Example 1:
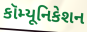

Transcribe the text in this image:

કૉમ્યૂનિકેશન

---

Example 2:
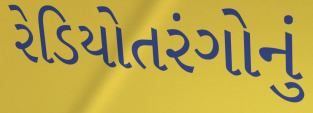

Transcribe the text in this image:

રેડિયોતરંગોનું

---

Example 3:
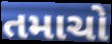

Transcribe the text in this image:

તમાચો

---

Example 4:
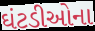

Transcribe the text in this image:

ઘંટડીઓના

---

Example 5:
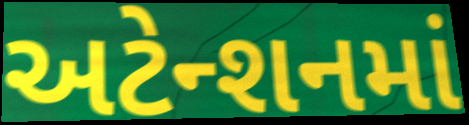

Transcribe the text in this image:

અટેન્શનમાં